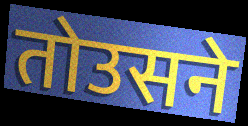
तोउसने